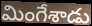
మింగేశాడు